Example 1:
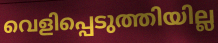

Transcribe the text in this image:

വെളിപ്പെടുത്തിയില്ല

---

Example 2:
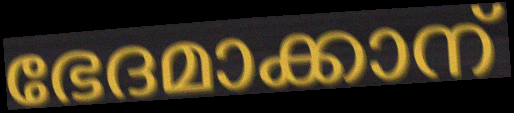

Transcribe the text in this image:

ഭേദമാക്കാന്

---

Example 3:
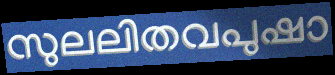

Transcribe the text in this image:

സുലലിതവപുഷാ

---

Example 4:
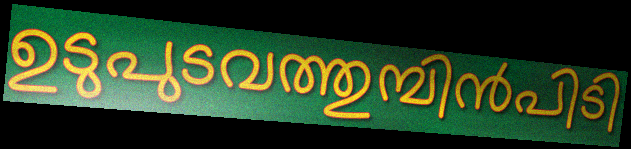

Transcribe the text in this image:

ഉടുപുടവത്തുമ്പിൻപിടി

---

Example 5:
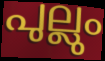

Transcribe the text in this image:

പുല്ലും